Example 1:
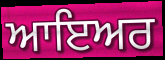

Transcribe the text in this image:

ਆਇਅਰ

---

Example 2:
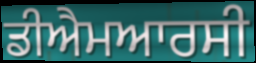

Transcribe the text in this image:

ਡੀਐਮਆਰਸੀ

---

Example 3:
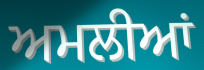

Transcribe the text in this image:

ਅਮਲੀਆਂ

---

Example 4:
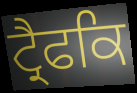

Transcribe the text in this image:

ਟ੍ਰੈਫਕਿ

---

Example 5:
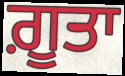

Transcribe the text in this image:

ਗ਼ੂਤਾ